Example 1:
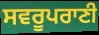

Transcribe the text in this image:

ਸਵਰੂਪਰਾਣੀ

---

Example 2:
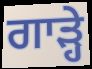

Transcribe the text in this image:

ਗਾੜ੍ਹੇ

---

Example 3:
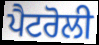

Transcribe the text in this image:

ਪੈਟਰੋਲੀ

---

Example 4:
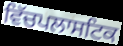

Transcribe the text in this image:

ਵਿੱਚਪਲਾਸਟਿਕ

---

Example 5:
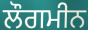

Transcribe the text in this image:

ਲੌਗਮੀਨ